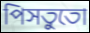
পিসতুতো